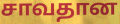
சாவதான